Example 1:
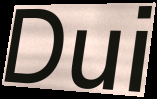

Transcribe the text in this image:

Dui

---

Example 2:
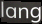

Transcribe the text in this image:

lang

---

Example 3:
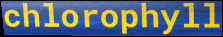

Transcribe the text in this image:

chlorophyll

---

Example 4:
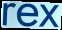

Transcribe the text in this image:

rex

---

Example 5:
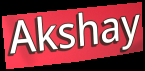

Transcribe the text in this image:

Akshay